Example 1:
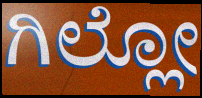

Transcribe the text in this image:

ಗಿಲ್ಲೋ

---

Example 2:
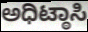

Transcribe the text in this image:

ಅಧಿಟ್ಠಾಸಿ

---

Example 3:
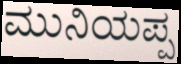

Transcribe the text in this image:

ಮುನಿಯಪ್ಪ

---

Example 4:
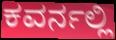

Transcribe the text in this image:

ಕವರ್ನಲ್ಲಿ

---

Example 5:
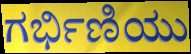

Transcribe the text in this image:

ಗರ್ಭಿಣಿಯು